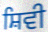
ਸ਼ਿਵੀ